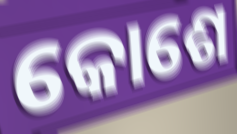
କୋଶେ